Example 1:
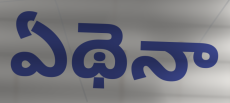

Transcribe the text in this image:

ఏథెనా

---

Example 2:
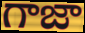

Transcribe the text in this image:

గాజా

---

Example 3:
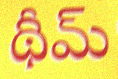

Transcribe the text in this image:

థీమ్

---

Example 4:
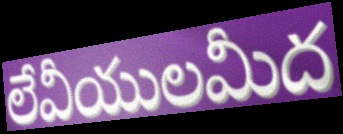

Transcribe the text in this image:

లేవీయులమీద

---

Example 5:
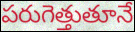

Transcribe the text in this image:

పరుగెత్తుతూనే